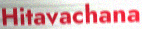
Hitavachana